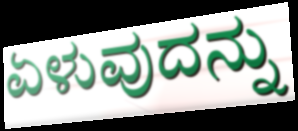
ಏಳುವುದನ್ನು